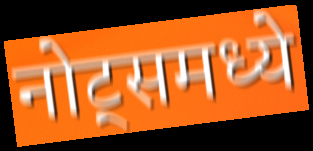
नोट्समध्ये